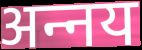
अन्नय